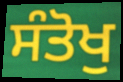
ਸੰਤੋਖੁ